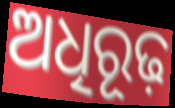
ଅଧିରୂଢ଼